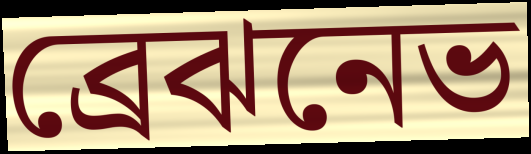
ব্রেঝনেভ